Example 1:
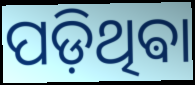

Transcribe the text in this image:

ପଡ଼ିଥିଵା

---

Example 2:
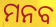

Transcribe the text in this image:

ମନବ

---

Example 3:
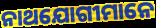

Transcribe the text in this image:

ନାଥଯୋଗୀମାନେ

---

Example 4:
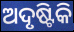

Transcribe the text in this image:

ଅଦୃଷ୍ଟିକି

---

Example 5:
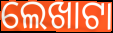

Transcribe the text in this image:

ଲେଖାଟା